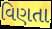
વિણતા